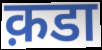
क़डा